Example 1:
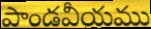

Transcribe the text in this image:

పాండవీయము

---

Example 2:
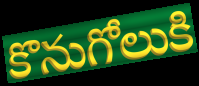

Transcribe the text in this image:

కొనుగోలుకి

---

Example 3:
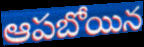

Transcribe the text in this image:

ఆపబోయిన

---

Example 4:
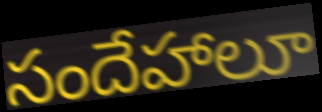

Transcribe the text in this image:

సందేహాలూ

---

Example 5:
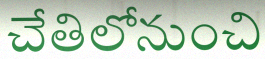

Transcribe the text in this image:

చేతిలోనుంచి